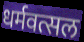
धर्मवत्सल